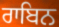
ਰਾਬਿਨ